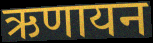
ऋणायन